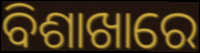
ବିଶାଖାରେ